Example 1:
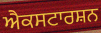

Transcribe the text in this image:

ਐਕਸਟਾਰਸ਼ਨ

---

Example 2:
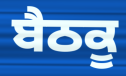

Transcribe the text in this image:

ਬੈਠਕੂ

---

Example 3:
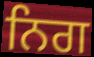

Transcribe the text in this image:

ਨਿਗ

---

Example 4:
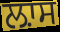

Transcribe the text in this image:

ਲ਼ਾਸ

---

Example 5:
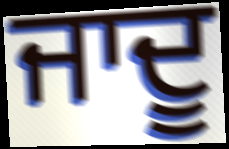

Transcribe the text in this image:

ਜਾਦੂ